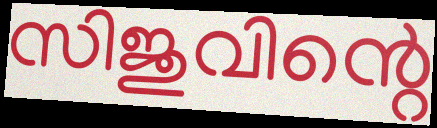
സിജുവിന്റെ